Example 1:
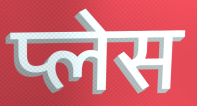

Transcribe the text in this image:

प्लेस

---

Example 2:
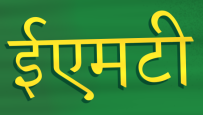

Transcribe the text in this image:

ईएमटी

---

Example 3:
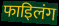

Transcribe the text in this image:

फाइिलंग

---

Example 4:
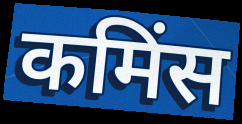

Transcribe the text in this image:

कमिंस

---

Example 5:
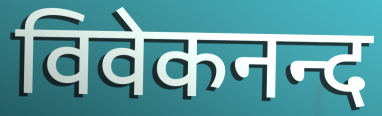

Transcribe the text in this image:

विवेकनन्द